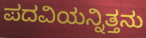
ಪದವಿಯನ್ನಿತ್ತನು